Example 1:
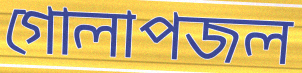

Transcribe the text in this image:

গোলাপজল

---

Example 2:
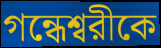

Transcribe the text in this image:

গন্ধেশ্বরীকে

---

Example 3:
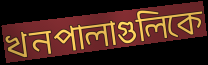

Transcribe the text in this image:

খনপালাগুলিকে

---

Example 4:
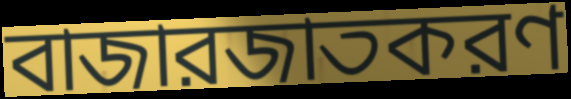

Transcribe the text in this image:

বাজারজাতকরণ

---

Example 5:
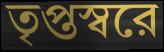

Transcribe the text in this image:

তৃপ্তস্বরে